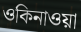
ওকিনাওয়া